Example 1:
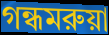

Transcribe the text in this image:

গন্ধমরুয়া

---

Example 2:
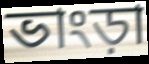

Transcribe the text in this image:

ভাংড়া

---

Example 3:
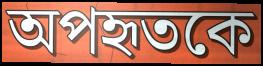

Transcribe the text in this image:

অপহৃতকে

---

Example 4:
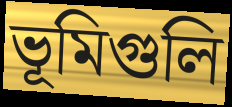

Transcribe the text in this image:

ভূমিগুলি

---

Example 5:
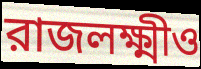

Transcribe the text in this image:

রাজলক্ষ্মীও